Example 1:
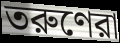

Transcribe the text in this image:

তরুণেরা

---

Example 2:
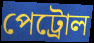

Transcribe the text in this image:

পেট্রোল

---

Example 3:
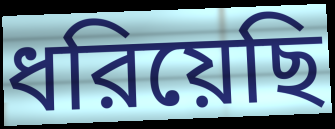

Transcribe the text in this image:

ধরিয়েছি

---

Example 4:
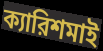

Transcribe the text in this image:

ক্যারিশমাই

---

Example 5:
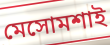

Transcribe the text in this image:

মেসোমশাই